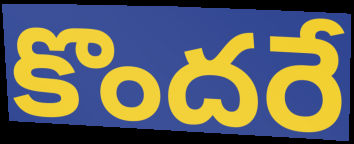
కొందరే